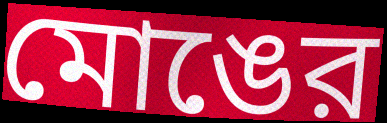
মোঙের